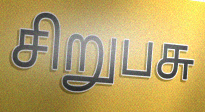
சிறுபசு